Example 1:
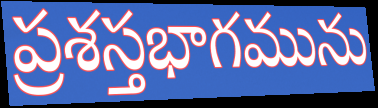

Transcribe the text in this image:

ప్రశస్తభాగమును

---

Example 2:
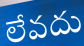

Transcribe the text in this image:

లేవదు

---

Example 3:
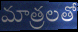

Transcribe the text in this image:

మాత్రలతో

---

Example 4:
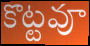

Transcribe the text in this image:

కొట్టవూ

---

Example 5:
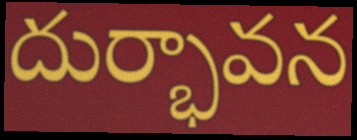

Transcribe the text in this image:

దుర్భావన